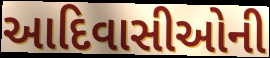
આદિવાસીઓની